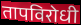
तापविरोधी